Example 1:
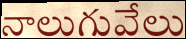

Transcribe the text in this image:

నాలుగువేలు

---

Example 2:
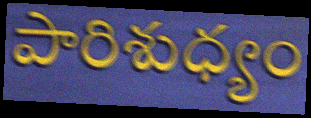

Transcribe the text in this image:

పారిశుధ్యం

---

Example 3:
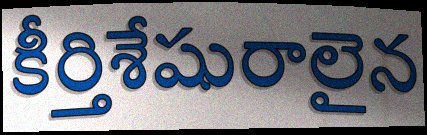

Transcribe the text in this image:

కీర్తిశేషురాలైన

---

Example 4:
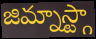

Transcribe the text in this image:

జిమ్నాస్ట్గా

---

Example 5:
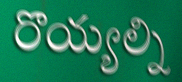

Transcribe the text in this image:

రొయ్యల్ని